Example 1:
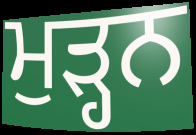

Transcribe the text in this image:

ਮੁੜ੍ਹਨ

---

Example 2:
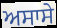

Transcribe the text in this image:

ਅਸਾਸੇ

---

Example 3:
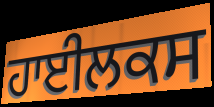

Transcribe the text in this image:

ਹਾਈਲਕਸ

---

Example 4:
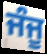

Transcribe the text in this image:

ਜੰਜੂ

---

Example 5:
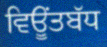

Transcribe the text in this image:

ਵਿਊਂਤਬੱਧ